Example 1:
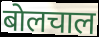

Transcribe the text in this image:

बोलचाल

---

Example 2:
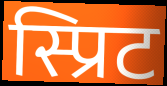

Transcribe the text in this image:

स्प्रिट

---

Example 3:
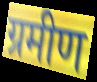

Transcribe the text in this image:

ग्रमीण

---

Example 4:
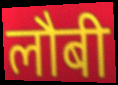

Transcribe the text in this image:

लौबी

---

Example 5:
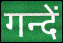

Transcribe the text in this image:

गन्दें